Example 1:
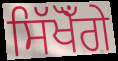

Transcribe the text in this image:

ਸਿੱਖੋਁਗੇ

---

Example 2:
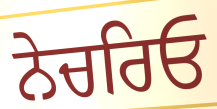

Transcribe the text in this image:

ਨੇਚਰਿਓ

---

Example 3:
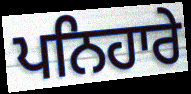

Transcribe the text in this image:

ਪਨਿਹਾਰੇ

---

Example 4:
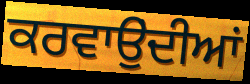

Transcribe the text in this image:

ਕਰਵਾਉੁਂਦੀਆਂ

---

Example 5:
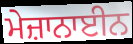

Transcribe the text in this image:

ਮੇਜ਼ਾਨਾਈਨ